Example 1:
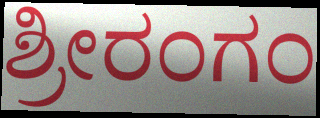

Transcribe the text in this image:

ಶ್ರೀರಂಗಂ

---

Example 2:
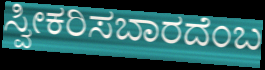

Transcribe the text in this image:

ಸ್ವೀಕರಿಸಬಾರದೆಂಬ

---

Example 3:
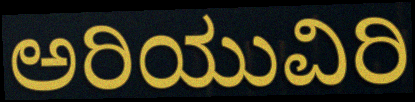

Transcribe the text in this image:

ಅರಿಯುವಿರಿ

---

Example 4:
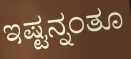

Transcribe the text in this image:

ಇಷ್ಟನ್ನಂತೂ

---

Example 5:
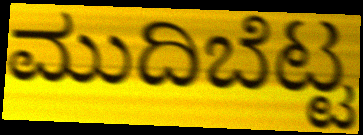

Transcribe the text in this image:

ಮುದಿಬೆಟ್ಟ